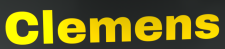
Clemens